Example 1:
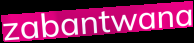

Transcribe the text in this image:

zabantwana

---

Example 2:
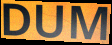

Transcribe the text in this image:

DUM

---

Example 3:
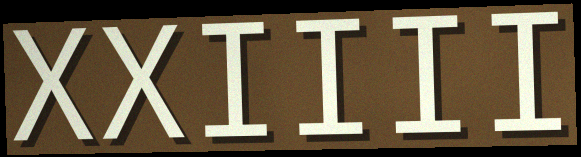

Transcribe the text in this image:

XXIIII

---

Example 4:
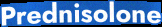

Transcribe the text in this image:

Prednisolone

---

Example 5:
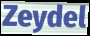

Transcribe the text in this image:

Zeydel